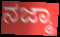
ನಜ್ಮಾ